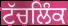
ਟੱਚਲਿੰਕ